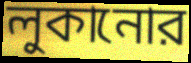
লুকানোর